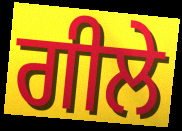
ਗੀਲੇ